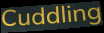
Cuddling